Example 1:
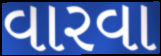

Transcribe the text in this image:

વારવા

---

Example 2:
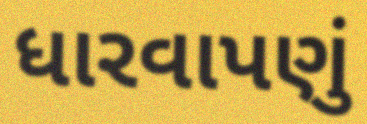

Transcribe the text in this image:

ધારવાપણું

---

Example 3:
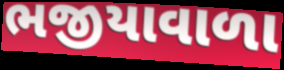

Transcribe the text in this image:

ભજીયાવાળા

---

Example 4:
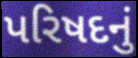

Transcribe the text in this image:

પરિષદનું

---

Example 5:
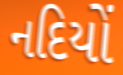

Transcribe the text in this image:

નદિયોં